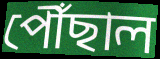
পৌঁছাল